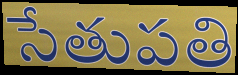
సేతుపతి